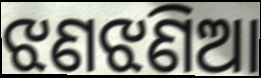
ଝଣଝଣିଆ